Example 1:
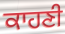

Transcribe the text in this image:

ਕਾਹਣੀ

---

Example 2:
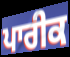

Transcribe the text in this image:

ਪਾਰੀਕ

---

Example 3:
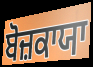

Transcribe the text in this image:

ਬੋਜ਼ਕਾਯਾ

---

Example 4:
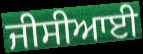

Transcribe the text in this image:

ਜੀਸੀਆਈ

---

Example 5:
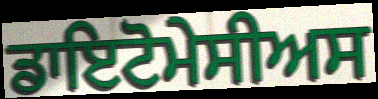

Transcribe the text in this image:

ਡਾਇਟੋਮੇਸੀਅਸ